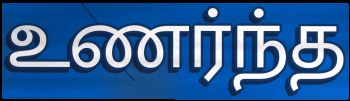
உணர்ந்த